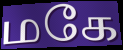
மகே